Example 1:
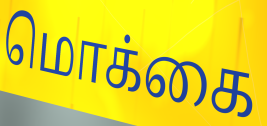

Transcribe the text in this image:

மொக்கை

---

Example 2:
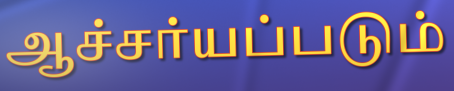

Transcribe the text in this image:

ஆச்சர்யப்படும்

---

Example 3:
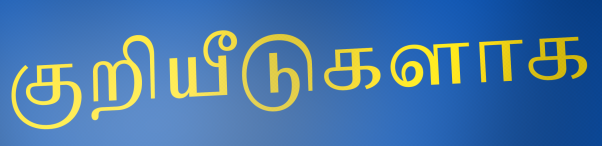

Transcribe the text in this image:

குறியீடுகளாக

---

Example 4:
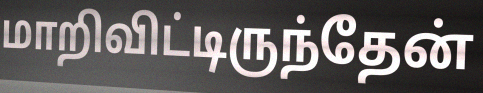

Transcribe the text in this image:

மாறிவிட்டிருந்தேன்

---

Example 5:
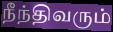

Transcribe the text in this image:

நீந்திவரும்